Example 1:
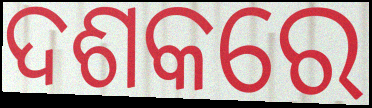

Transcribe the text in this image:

ଦଶକରେ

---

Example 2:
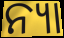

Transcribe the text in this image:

ନ୍ୟା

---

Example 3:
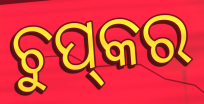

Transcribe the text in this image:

ଚୁପ୍‌କର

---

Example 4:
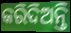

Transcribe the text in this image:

କରିଦିଅନ୍ତି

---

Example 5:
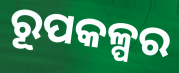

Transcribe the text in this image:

ରୂପକଳ୍ପର